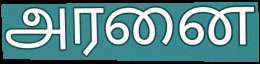
அரனை